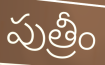
పుత్రీం